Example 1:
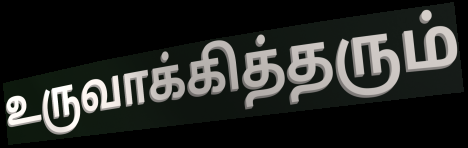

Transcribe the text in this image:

உருவாக்கித்தரும்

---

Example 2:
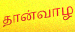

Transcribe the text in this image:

தான்வாழ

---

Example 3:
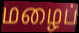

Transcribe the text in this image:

மழைப்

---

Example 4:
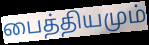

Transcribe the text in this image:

பைத்தியமும்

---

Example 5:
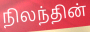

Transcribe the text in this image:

நிலந்தின்